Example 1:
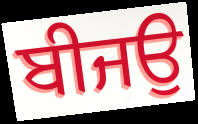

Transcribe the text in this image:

ਬੀਜਉ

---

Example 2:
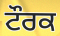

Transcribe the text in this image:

ਟੌਰਕ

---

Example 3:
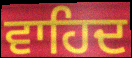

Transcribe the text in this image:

ਵਾਹਿਦ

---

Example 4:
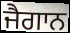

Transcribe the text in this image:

ਜੈਗਾਨ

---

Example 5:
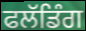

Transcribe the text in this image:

ਫਲੱਡਿੰਗ